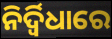
ନିର୍ଦ୍ୱିଧାରେ